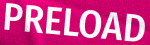
PRELOAD